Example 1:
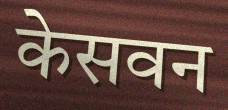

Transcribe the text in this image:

केसवन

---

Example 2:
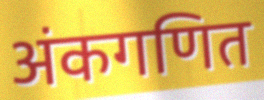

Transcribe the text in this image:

अंकगणित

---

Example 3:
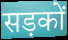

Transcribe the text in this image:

सड़कों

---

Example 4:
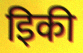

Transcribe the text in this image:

इिकी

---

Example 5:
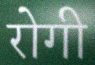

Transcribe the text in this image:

रोगी